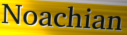
Noachian